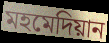
মহমেদিয়ান